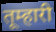
तूम्हारी